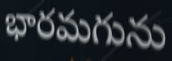
భారమగును